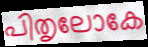
പിതൃലോകേ